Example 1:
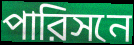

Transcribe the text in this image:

পারিসনে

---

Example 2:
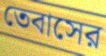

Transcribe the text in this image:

তেবাসের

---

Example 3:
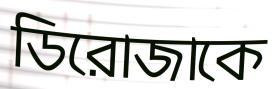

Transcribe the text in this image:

ডিরোজাকে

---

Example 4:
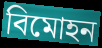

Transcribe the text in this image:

বিমোহন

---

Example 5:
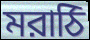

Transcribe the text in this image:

মরাঠি